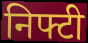
निफ्टी